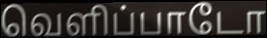
வெளிப்பாடோ